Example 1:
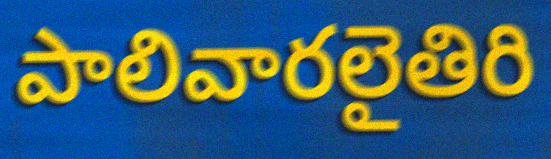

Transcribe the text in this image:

పాలివారలైతిరి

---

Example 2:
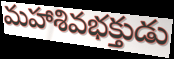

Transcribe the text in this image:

మహాశివభక్తుడు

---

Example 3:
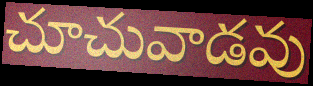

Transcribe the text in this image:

చూచువాడవు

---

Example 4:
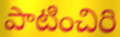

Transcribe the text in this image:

పాటించిరి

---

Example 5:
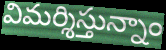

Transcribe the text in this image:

విమర్శిస్తున్నాం